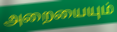
அறையையும்